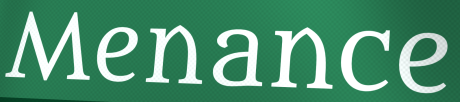
Menance